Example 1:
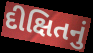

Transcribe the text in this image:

દીક્ષિતનું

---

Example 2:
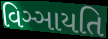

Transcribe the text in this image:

વિઞ્ઞાયતિ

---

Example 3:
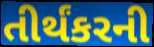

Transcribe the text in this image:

તીર્થંકરની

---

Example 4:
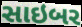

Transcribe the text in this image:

સાઇબર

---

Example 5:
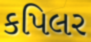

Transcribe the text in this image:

કપિલર